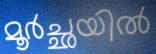
മൂർച്ഛയിൽ